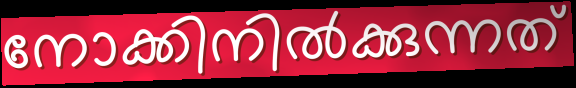
നോക്കിനിൽക്കുന്നത്